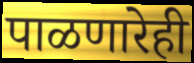
पाळणारेही